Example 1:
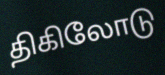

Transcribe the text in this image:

திகிலோடு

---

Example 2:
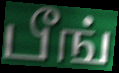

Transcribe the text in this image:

பீங்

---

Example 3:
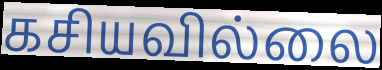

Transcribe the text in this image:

கசியவில்லை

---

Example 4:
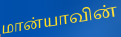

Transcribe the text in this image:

மான்யாவின்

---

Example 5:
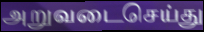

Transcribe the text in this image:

அறுவடைசெய்து